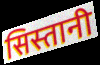
सिस्तानी